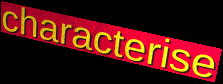
characterise